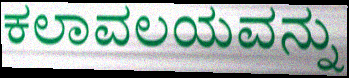
ಕಲಾವಲಯವನ್ನು